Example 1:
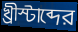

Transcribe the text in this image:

খ্রীস্টাব্দের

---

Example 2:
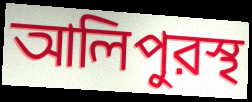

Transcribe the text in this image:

আলিপুরস্থ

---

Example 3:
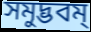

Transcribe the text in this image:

সমুদ্ভবম্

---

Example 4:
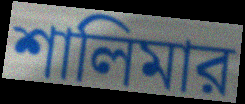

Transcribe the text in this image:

শালিমার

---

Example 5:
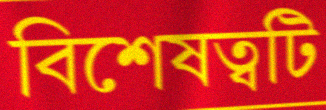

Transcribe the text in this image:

বিশেষত্বটি